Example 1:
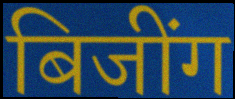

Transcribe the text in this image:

बिजींग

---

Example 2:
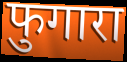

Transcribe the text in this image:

फुगारा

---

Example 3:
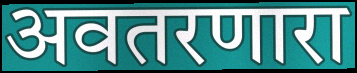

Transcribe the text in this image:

अवतरणारा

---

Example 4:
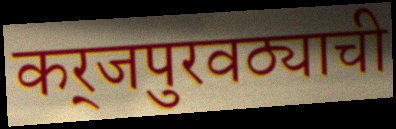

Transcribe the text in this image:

कर्जपुरवठ्याची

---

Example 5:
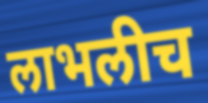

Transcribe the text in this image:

लाभलीच